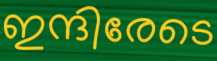
ഇന്ദിരേടെ